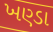
ખણ્ડા